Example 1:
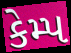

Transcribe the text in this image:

કેમ્પ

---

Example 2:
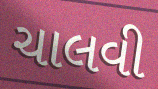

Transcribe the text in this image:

ચાલવી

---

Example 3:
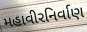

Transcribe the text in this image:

મહાવીરનિર્વાણ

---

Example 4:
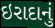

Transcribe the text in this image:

ઇરાદાનું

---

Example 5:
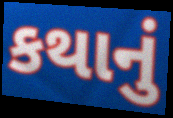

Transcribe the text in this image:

કથાનું